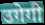
उगेगी